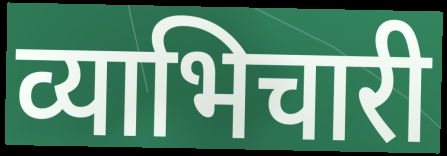
व्याभिचारी